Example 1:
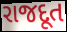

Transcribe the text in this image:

રાજદૂત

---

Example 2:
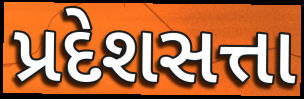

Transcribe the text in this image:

પ્રદેશસત્તા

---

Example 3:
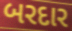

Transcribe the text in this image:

બરદાર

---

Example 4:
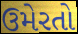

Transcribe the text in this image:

ઉમેરતો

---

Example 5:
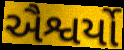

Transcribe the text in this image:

ઐશ્વર્યો